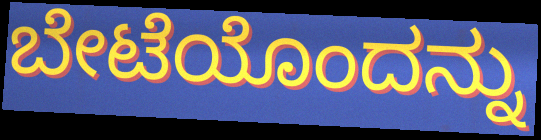
ಬೇಟೆಯೊಂದನ್ನು